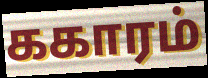
ககாரம்